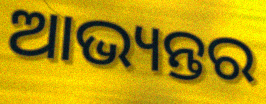
ଆଭ୍ୟନ୍ତର